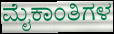
ಮೈಕಾಂತಿಗಳ